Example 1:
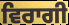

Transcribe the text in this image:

ਵਿਰਾਗੀ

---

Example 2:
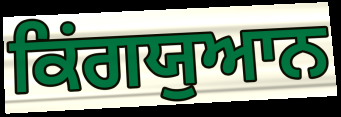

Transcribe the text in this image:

ਕਿਂਗਯੁਆਨ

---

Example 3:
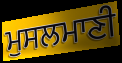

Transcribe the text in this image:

ਮੁਸਲਮਾਣੀ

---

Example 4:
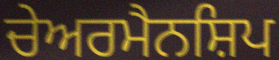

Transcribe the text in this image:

ਚੇਅਰਮੈਨਸ਼ਿਪ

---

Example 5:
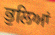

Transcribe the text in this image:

ਭੁਲਿਆਂ